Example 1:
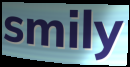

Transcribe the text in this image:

smily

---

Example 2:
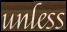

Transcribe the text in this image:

unless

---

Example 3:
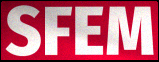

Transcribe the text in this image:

SFEM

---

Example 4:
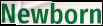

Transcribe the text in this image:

Newborn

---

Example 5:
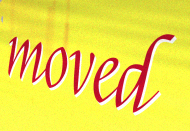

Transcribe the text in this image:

moved